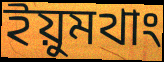
ইয়ুমথাং